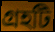
গ্রহটি